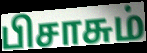
பிசாசும்